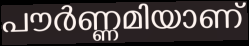
പൗർണ്ണമിയാണ്